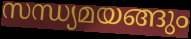
സന്ധ്യമയങ്ങും